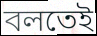
বলতেই